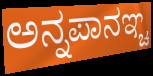
ಅನ್ನಪಾನಞ್ಚ